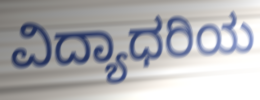
ವಿದ್ಯಾಧರಿಯ